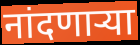
नांदणार्‍या